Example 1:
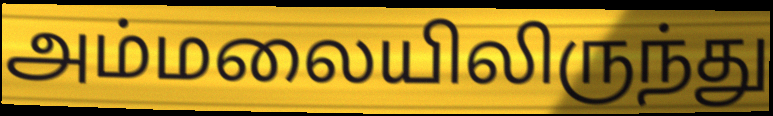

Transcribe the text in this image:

அம்மலையிலிருந்து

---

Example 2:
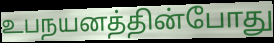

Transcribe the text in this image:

உபநயனத்தின்போது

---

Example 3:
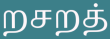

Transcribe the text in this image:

றசறத்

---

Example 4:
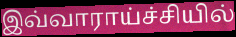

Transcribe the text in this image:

இவ்வாராய்ச்சியில்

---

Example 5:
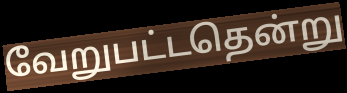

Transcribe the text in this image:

வேறுபட்டதென்று